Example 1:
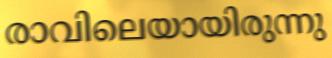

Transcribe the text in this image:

രാവിലെയായിരുന്നു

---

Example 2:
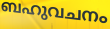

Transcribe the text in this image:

ബഹുവചനം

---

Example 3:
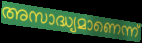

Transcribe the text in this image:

അസാദ്ധ്യമാണെന്ന്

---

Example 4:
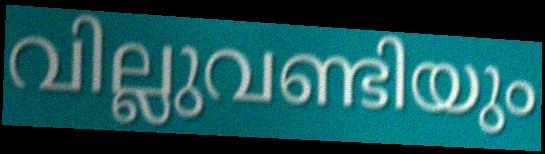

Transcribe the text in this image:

വില്ലുവണ്ടിയും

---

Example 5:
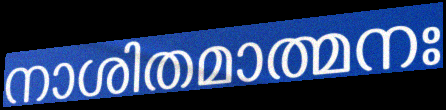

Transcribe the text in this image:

നാശിതമാത്മനഃ